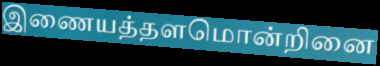
இணையத்தளமொன்றினை